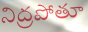
నిద్రపోతూ